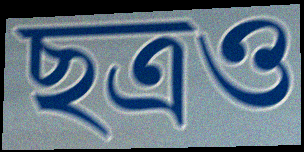
ছত্রও